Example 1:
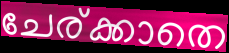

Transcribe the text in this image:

ചേര്ക്കാതെ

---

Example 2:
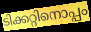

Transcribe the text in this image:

ടിക്കറ്റിനൊപ്പം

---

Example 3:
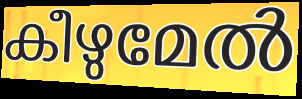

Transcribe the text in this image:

കീഴുമേൽ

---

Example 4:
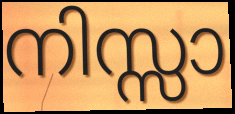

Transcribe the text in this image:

നിസ്സാ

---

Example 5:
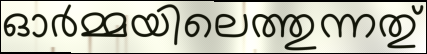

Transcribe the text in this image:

ഓർമ്മയിലെത്തുന്നതു്